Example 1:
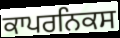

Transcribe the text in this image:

ਕਾਪਰਨਿਕਸ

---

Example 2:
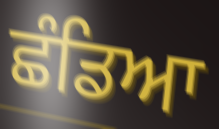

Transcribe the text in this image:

ਛੰਡਿਆ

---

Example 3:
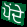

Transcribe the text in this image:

ਪੋਂਦੇ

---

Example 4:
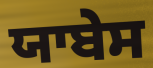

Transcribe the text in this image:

ਯਾਬੇਸ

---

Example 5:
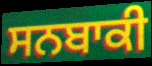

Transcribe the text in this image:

ਸਨਬਾਕੀ